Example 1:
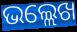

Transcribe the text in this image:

ଭଲ୍ଲେଖ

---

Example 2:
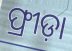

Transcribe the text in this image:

ଫ୍ରୀଡ଼ା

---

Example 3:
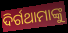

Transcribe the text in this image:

ଦିର୍ଗଥାମାଙ୍କୁ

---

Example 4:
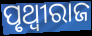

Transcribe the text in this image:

ପୃଥ୍ୱୀରାଜ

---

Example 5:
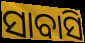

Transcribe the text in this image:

ସାବାସି